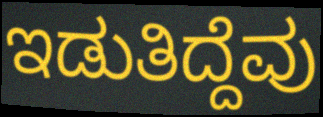
ಇಡುತಿದ್ದೆವು